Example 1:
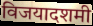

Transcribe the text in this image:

विजयादशमी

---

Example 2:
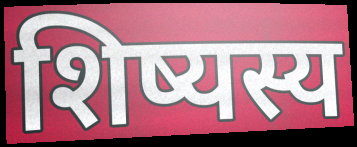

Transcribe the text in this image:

शिष्यस्य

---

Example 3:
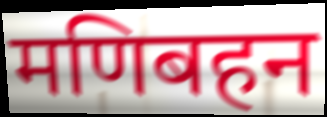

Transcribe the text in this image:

मणिबहन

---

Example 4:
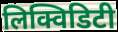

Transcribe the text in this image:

लिक्विडिटी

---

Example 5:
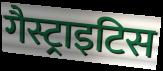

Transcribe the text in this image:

गैस्ट्राइटिस